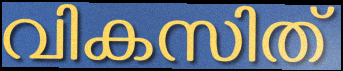
വികസിത്